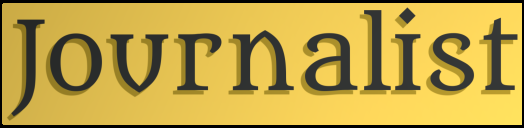
Journalist